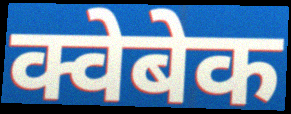
क्वेबेक